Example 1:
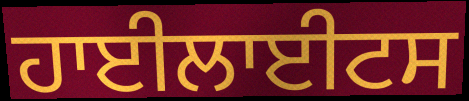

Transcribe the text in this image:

ਹਾਈਲਾਈਟਸ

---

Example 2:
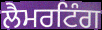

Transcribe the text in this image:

ਲੈਮਰਟਿੰਗ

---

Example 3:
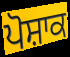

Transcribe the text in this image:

ਪੋਸ਼ਾਕ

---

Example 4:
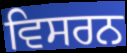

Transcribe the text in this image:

ਵਿਸਰਨ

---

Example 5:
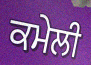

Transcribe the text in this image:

ਕਮੇਲੀ